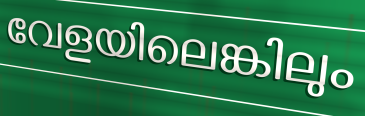
വേളയിലെങ്കിലും